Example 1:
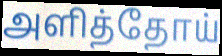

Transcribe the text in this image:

அளித்தோய்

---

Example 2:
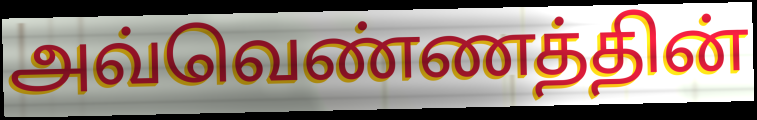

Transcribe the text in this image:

அவ்வெண்ணத்தின்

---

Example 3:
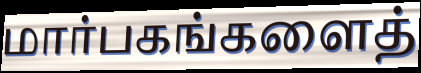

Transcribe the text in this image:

மார்பகங்களைத்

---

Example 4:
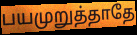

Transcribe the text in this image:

பயமுறுத்தாதே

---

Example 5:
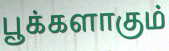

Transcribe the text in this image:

பூக்களாகும்